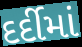
દર્દીમાં